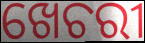
ଖେଚରୀ